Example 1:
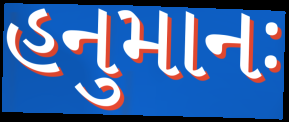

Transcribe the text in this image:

હનુમાનઃ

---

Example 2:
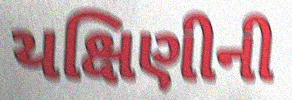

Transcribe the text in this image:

યક્ષિણીની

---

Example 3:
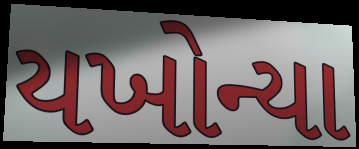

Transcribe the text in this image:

યખોન્યા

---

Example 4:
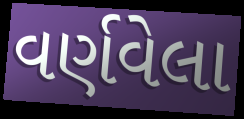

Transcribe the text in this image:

વર્ણવેલા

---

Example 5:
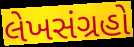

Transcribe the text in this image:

લેખસંગ્રહો